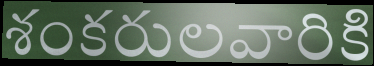
శంకరులవారికి